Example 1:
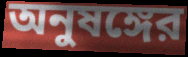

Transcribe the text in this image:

অনুষঙ্গের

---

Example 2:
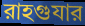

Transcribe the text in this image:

রাহগুযার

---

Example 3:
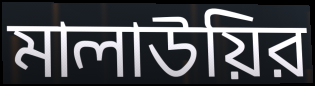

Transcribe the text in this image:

মালাউয়ির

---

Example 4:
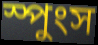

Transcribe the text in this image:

স্পুংস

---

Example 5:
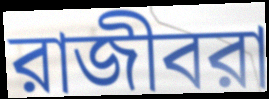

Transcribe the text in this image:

রাজীবরা